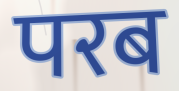
परब